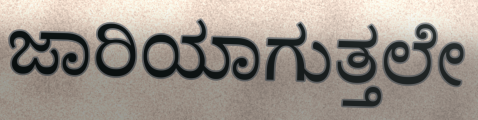
ಜಾರಿಯಾಗುತ್ತಲೇ